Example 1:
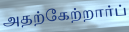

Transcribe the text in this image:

அதற்கேற்றார்ப்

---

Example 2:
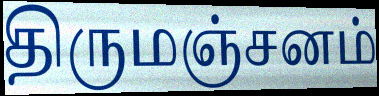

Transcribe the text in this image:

திருமஞ்சனம்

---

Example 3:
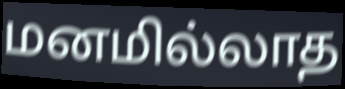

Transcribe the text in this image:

மனமில்லாத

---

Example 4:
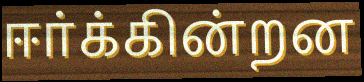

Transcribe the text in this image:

ஈர்க்கின்றன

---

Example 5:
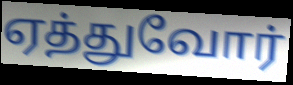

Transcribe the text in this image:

ஏத்துவோர்